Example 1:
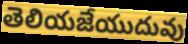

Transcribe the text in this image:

తెలియజేయుదువు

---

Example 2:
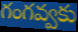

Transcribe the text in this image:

గంగవ్వకు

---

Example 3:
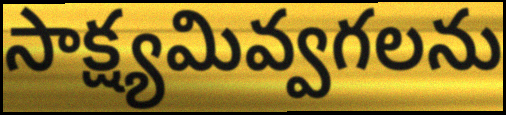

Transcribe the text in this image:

సాక్ష్యమివ్వగలను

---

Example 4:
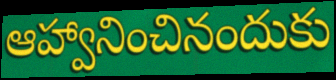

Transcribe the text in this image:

ఆహ్వానించినందుకు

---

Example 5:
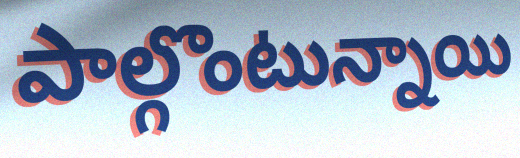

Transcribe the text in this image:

పాల్గొంటున్నాయి